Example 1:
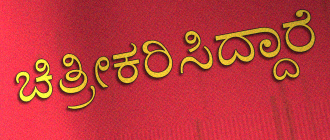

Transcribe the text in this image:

ಚಿತ್ರೀಕರಿಸಿದ್ದಾರೆ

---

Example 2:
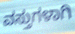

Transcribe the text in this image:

ವಸ್ತುಗಳಾಗಿ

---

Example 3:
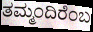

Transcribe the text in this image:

ತಮ್ಮಂದಿರೆಂಬ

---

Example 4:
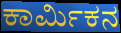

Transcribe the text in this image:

ಕಾರ್ಮಿಕನ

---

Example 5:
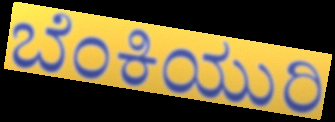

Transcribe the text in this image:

ಬೆಂಕಿಯುರಿ